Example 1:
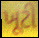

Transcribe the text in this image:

ખૂટી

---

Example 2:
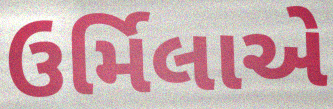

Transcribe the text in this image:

ઉર્મિલાએ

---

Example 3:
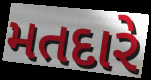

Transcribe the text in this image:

મતદારે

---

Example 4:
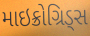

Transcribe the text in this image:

માઇક્રોગ્રિડ્સ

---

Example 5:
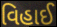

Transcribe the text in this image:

વિહાઈ